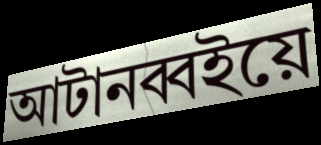
আটানব্বইয়ে